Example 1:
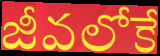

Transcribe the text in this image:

జీవలోకే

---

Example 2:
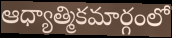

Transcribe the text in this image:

ఆధ్యాత్మికమార్గంలో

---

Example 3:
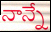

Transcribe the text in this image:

నాన్నే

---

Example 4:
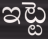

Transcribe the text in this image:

ఇట్టె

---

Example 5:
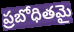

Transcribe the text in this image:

ప్రబోధితమై